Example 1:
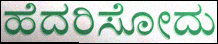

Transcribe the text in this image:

ಹೆದರಿಸೋದು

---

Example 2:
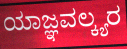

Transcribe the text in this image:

ಯಾಜ್ಞವಲ್ಕ್ಯರ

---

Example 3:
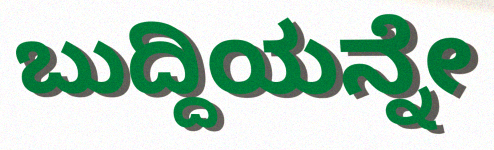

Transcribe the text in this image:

ಬುದ್ದಿಯನ್ನೇ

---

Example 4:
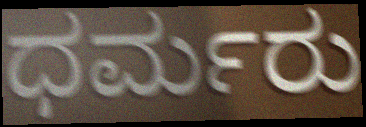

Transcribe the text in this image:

ಧರ್ಮರು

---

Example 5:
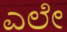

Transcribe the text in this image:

ಎಲೇ